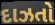
દાઝતો